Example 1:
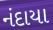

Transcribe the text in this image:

નંદાયા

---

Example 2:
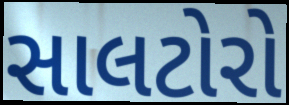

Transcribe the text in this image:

સાલટોરો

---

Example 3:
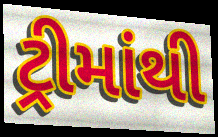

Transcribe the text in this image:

ટ્રીમાંથી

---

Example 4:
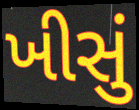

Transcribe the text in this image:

ખીસું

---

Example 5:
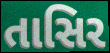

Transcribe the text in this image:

તાસિર